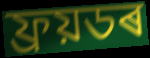
ফ্ৰয়ডৰ